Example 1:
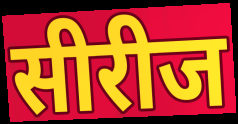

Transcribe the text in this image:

सीरीज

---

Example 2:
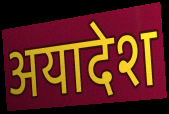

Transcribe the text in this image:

अयादेश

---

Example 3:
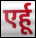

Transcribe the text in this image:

एर्हू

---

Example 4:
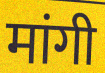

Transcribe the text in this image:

मांगी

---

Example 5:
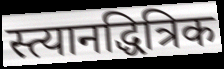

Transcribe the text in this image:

स्त्यानद्धित्रिक